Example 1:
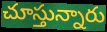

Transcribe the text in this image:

చూస్తున్నారు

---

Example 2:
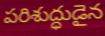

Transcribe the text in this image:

పరిశుద్ధుడైన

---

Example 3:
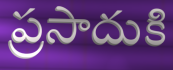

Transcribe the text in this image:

ప్రసాదుకి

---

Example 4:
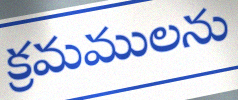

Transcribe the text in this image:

క్రమములను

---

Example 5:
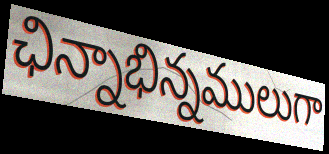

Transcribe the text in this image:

ఛిన్నాభిన్నములుగా